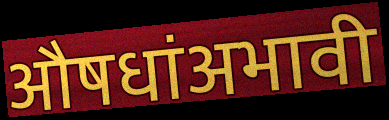
औषधांअभावी